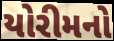
યોરીમનો